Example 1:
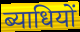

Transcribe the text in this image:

ब्याधियों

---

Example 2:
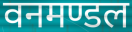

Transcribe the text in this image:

वनमण्डल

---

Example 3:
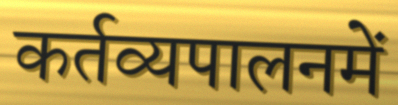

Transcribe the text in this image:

कर्तव्यपालनमें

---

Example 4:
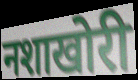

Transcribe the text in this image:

नशाखोरी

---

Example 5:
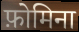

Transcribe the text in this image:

फ़ोमिना